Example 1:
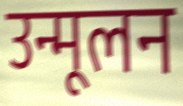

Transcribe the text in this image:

उन्‍मूलन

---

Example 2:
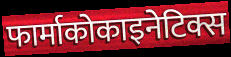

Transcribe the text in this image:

फार्माकोकाइनेटिक्स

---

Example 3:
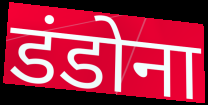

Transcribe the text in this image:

डंडोना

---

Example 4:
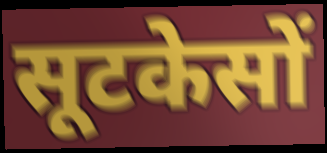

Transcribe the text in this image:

सूटकेसों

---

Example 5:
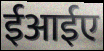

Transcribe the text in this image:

ईआईए